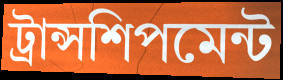
ট্রান্সশিপমেন্ট